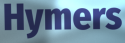
Hymers